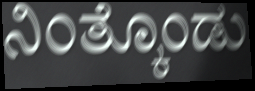
ನಿಂತ್ಕೊಂಡು